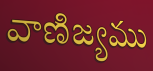
వాణిజ్యము